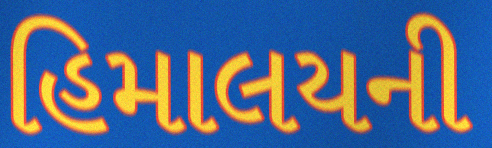
હિમાલયની